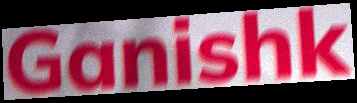
Ganishk